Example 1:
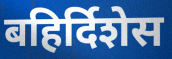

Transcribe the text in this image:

बहिर्दिशेस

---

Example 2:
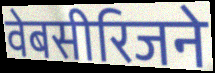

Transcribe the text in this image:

वेबसीरिजने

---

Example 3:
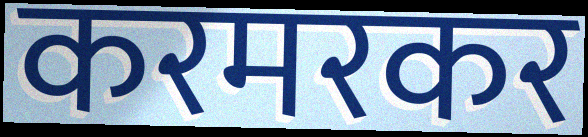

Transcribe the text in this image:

करमरकर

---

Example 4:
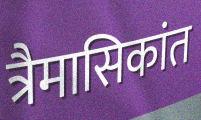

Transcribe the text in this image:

त्रैमासिकांत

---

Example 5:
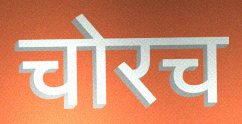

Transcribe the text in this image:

चोरच